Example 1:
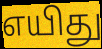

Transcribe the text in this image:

எயிது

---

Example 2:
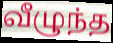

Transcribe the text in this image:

வீழுந்த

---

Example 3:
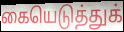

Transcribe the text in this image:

கையெடுத்துக்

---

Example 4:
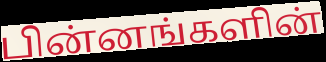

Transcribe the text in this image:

பின்னங்களின்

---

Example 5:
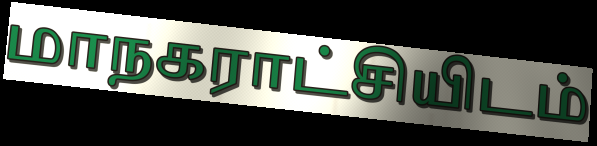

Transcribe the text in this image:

மாநகராட்சியிடம்